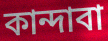
কান্দাবা